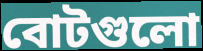
বোটগুলো